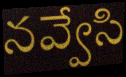
నవ్వేసి